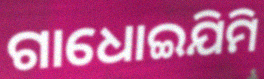
ଗାଧୋଇଯିମି